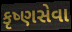
કૃષ્ણસેવા